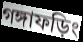
গঙ্গাফড়িং